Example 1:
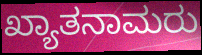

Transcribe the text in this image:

ಖ್ಯಾತನಾಮರು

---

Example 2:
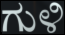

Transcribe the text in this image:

ಗುಳಿ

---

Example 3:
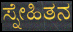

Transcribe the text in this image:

ಸ್ನೇಹಿತನ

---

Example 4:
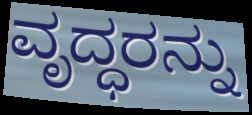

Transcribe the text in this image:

ವೃದ್ಧರನ್ನು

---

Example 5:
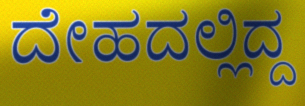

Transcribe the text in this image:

ದೇಹದಲ್ಲಿದ್ದ